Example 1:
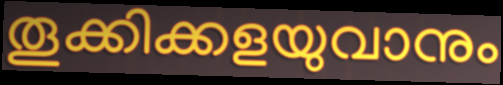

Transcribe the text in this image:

തൂക്കിക്കളയുവാനും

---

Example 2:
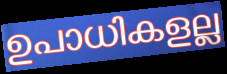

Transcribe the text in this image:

ഉപാധികളല്ല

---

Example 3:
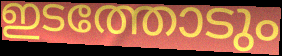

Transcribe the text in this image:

ഇടത്തോടും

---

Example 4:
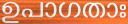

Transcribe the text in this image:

ഉപാഗതാഃ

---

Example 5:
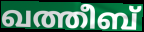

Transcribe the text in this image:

ഖത്തീബ്